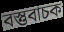
বস্তুবাচক